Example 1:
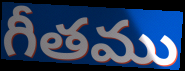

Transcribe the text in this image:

గీతము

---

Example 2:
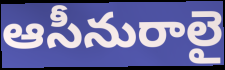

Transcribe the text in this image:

ఆసీనురాలై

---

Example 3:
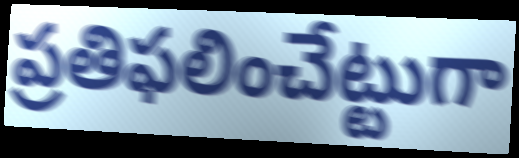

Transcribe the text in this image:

ప్రతిఫలించేట్టుగా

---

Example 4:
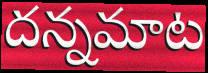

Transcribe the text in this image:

దన్నమాట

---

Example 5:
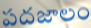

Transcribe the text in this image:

పదజాలం